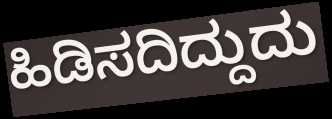
ಹಿಡಿಸದಿದ್ದುದು